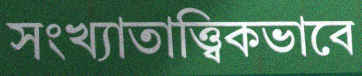
সংখ্যাতাত্ত্বিকভাবে